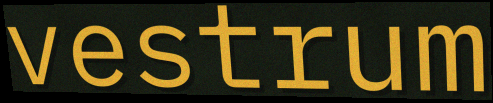
vestrum